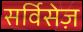
सर्विसेज़